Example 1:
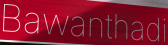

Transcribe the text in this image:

Bawanthadi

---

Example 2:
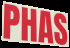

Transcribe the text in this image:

PHAS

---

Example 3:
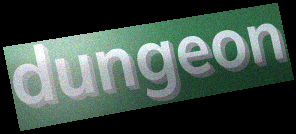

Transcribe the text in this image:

dungeon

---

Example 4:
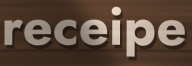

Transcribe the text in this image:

receipe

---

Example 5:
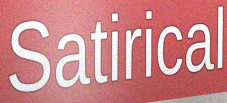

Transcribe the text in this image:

Satirical